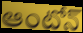
ఆంటోన్